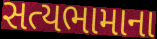
સત્યભામાના